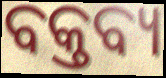
ବକ୍ତବ୍ଯ